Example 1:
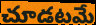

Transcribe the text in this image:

చూడటమే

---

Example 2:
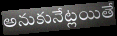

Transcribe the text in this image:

అనుకునేట్లయితే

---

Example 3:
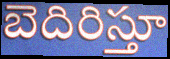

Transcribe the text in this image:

బెదిరిస్తూ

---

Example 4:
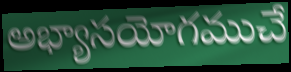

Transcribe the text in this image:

అభ్యాసయోగముచే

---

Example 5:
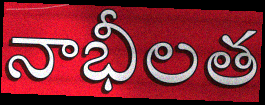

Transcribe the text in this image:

నాభీలత